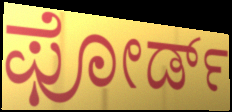
ಫೋರ್ಡ್